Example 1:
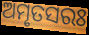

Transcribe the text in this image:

ଅମୃତସରଃ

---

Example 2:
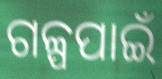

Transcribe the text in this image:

ଗଳ୍ପପାଇଁ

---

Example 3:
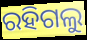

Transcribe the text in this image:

ରହିଗଲୁ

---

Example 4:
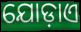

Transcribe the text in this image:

ଯୋଡ଼ାଏ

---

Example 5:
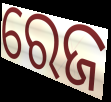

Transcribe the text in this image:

ରେଜ